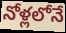
నోళ్లలోనే